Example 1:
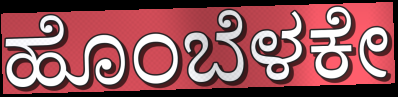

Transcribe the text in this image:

ಹೊಂಬೆಳಕೇ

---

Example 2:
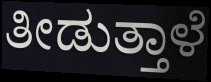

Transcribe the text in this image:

ತೀಡುತ್ತಾಳೆ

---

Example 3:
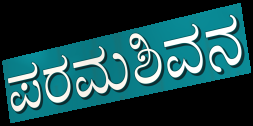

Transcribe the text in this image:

ಪರಮಶಿವನ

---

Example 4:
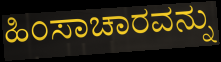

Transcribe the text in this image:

ಹಿಂಸಾಚಾರವನ್ನು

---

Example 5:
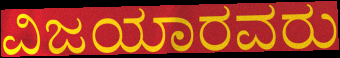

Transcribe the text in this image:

ವಿಜಯಾರವರು